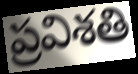
ప్రవిశతి